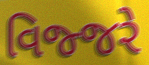
વિજ્જરે